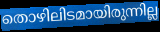
തൊഴിലിടമായിരുന്നില്ല